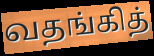
வதங்கித்